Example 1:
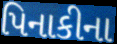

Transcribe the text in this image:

પિનાકીના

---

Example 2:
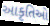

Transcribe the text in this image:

આકૃતિઓ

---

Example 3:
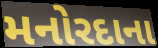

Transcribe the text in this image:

મનોરદાના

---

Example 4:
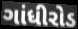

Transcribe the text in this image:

ગાંધીરોડ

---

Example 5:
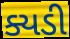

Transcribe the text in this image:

ક્યડી